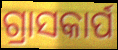
ଗ୍ରାସକାର୍ପ